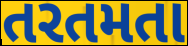
તરતમતા